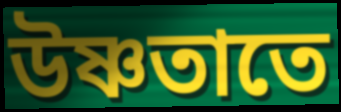
উষ্ণতাতে